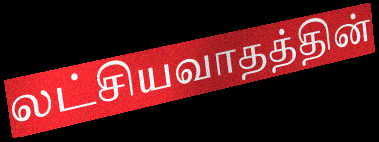
லட்சியவாதத்தின்